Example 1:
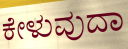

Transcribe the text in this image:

ಕೇಳುವುದಾ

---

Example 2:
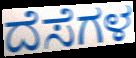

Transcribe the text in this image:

ದೆಸೆಗಳ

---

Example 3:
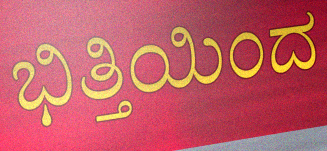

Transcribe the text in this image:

ಭಿತ್ತಿಯಿಂದ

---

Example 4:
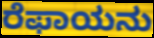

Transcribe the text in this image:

ರೆಫಾಯನು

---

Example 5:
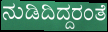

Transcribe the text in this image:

ನುಡಿದಿದ್ದರಂತೆ